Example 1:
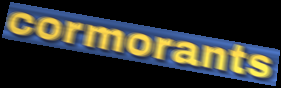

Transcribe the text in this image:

cormorants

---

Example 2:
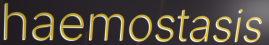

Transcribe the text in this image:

haemostasis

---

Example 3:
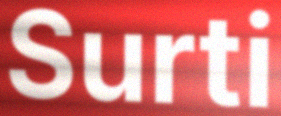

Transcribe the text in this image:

Surti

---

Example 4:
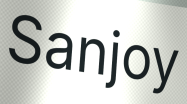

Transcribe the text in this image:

Sanjoy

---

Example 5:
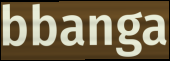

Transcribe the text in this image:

bbanga